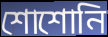
শোশোনি